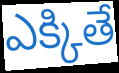
ఎక్కితే